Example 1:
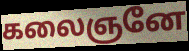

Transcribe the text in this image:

கலைஞனே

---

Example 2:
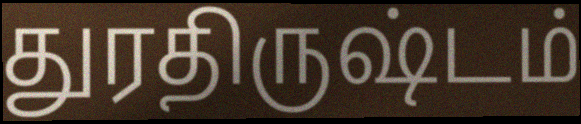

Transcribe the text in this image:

துரதிருஷ்டம்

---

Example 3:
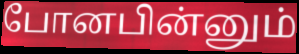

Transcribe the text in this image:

போனபின்னும்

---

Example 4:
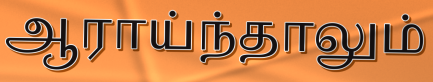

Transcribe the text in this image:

ஆராய்ந்தாலும்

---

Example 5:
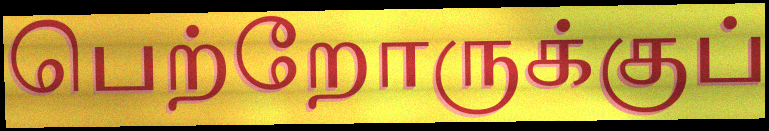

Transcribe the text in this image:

பெற்றோருக்குப்